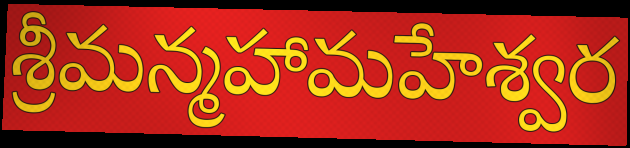
శ్రీమన్మహామహేశ్వర